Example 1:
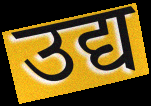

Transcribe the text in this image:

उद्य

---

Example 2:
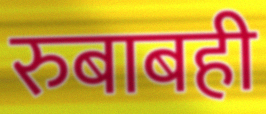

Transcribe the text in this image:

रुबाबही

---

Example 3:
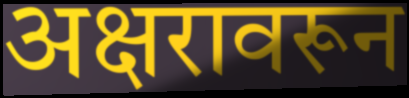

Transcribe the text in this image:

अक्षरावरून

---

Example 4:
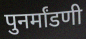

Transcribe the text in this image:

पुनर्मांडणी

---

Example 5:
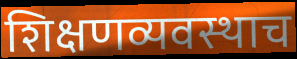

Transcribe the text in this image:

शिक्षणव्यवस्थाच